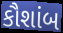
કૌશાંબ